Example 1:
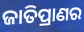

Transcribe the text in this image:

ଜାତିପ୍ରାଣର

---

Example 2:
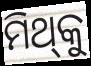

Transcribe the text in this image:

ମିଥ୍‍କୁ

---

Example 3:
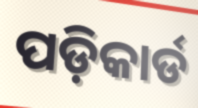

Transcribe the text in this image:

ପଡ଼ିକାର୍ଡ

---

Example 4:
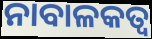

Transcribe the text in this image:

ନାବାଳକତ୍ଵ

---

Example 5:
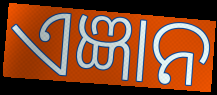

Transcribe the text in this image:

ଏଜ୍ଞାନ